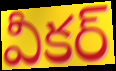
వీకర్